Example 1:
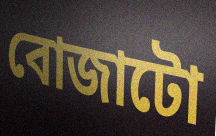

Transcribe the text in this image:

বোজাটো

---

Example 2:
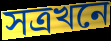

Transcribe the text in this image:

সত্ৰখনে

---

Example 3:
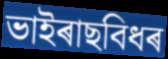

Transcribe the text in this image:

ভাইৰাছবিধৰ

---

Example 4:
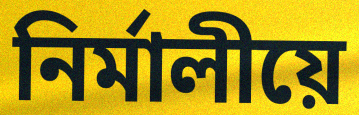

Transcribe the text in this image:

নিৰ্মালীয়ে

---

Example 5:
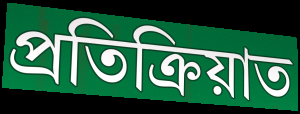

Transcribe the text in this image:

প্ৰতিক্ৰিয়াত